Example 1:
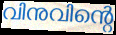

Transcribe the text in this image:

വിനുവിന്റെ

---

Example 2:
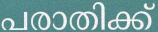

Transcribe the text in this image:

പരാതിക്ക്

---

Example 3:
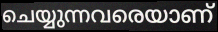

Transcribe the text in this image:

ചെയ്യുന്നവരെയാണ്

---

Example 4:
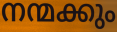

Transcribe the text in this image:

നന്മക്കും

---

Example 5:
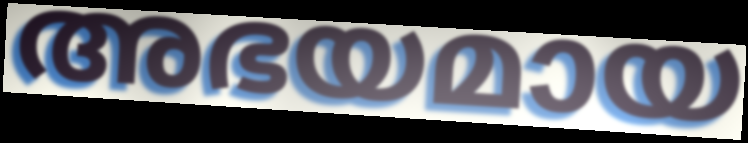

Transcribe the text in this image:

അഭയമായ